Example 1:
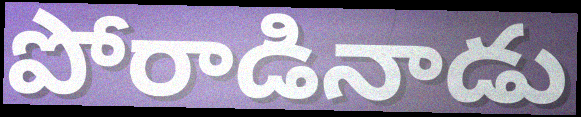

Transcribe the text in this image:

పోరాడినాడు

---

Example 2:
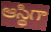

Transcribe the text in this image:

ఆస్థిగా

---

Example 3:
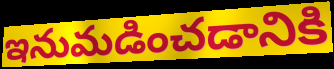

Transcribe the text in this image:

ఇనుమడించడానికి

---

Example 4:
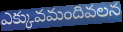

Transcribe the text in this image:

ఎక్కువమందివలన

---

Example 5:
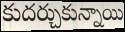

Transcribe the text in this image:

కుదర్చుకున్నాయి